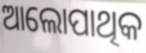
ଆଲୋପାଥିକ